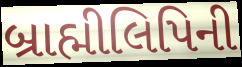
બ્રાહ્મીલિપિની